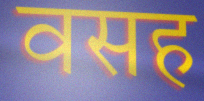
वसह